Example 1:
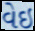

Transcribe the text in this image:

વેઇ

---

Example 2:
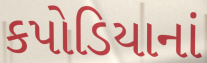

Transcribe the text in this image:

કપોડિયાનાં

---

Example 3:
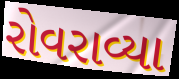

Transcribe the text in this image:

રોવરાવ્યા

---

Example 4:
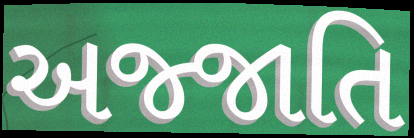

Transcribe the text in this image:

અજ્જાતિ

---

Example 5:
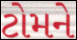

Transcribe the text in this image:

ટોમને